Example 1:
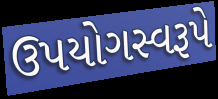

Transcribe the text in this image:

ઉપયોગસ્વરૂપે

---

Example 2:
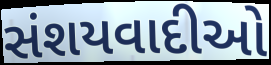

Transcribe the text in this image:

સંશયવાદીઓ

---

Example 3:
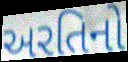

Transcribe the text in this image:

અરતિનો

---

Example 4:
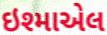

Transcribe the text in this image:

ઇશ્માએલ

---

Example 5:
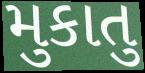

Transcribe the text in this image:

મુકાતુ